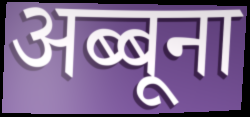
अब्बूना